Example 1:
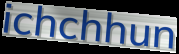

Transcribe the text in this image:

ichchhun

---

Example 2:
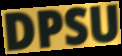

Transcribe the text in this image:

DPSU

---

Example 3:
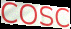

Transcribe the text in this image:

COSC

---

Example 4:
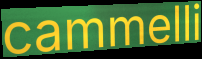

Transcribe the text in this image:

cammelli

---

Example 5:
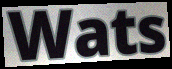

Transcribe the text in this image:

Wats